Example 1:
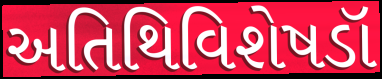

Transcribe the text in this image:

અતિથિવિશેષડૉ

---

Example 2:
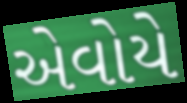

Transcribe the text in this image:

એવોયે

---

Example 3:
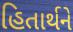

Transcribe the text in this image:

હિતાર્થને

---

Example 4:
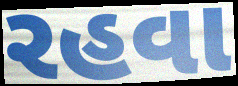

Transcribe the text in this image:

રહવા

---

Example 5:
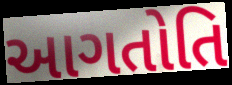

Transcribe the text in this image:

આગતોતિ